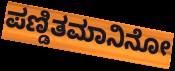
ಪಣ್ಡಿತಮಾನಿನೋ